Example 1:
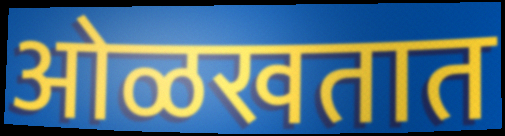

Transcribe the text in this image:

ओळखतात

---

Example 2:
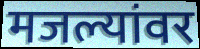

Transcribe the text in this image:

मजल्यांवर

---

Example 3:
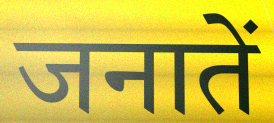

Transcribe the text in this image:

जनातें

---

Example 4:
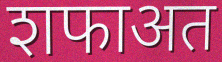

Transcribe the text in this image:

शफाअत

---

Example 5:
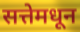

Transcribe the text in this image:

सत्तेमधून